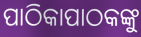
ପାଠିକାପାଠକଙ୍କୁ